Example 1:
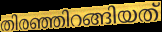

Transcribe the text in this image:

തിരഞ്ഞിറങ്ങിയത്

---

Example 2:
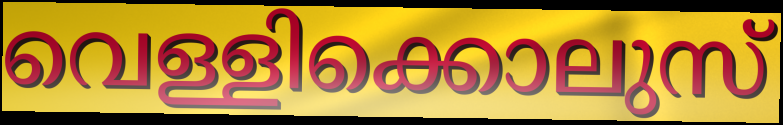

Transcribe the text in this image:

വെള്ളിക്കൊലുസ്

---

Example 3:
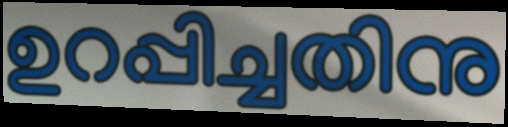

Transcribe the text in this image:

ഉറപ്പിച്ചതിനു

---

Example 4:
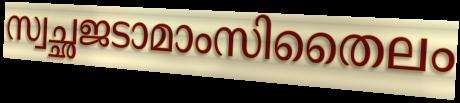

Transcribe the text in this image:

സ്വച്ഛജടാമാംസിതൈലം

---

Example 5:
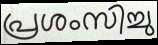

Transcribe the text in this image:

പ്രശംസിച്ചു